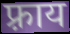
फ़्राय